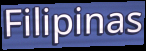
Filipinas